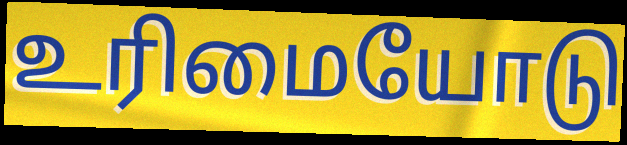
உரிமையோடு